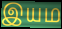
இயம